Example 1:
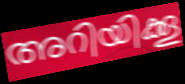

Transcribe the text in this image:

അറിയിക്കൂ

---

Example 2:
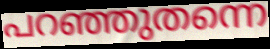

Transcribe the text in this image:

പറഞ്ഞുതന്നെ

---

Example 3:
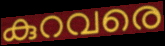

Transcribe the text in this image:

കുറവരെ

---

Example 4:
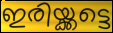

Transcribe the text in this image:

ഇരിയ്ക്കട്ടെ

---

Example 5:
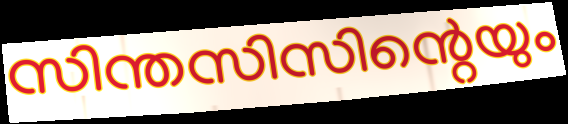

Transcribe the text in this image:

സിന്തസിസിന്റെയും